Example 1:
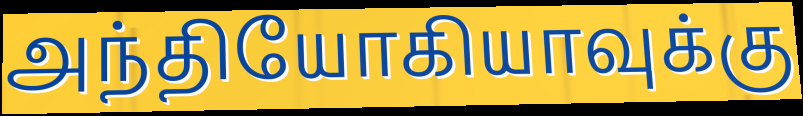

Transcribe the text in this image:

அந்தியோகியாவுக்கு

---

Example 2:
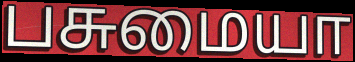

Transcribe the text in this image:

பசுமையா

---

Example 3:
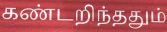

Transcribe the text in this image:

கண்டறிந்ததும்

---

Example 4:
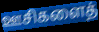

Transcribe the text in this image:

ஊசிகளைத்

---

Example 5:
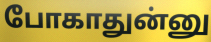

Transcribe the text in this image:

போகாதுன்னு